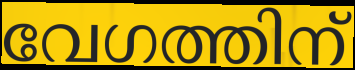
വേഗത്തിന്